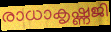
രാധാകൃഷ്ണജി